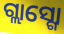
ଗ୍ଲାସ୍ଗୋ